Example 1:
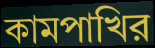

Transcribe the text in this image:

কামপাখির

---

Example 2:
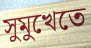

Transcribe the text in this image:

সুমুখেতে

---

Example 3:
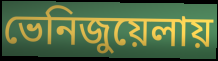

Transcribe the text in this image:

ভেনিজুয়েলায়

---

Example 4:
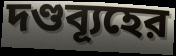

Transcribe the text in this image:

দণ্ডব্যূহের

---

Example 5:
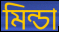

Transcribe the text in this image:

মিন্ডা